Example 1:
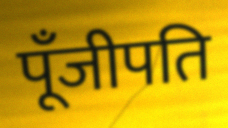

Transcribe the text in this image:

पूँजीपति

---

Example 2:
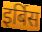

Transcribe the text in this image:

इर्बिस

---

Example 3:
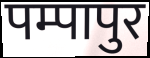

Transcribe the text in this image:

पम्पापुर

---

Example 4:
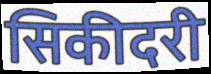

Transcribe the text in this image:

सिकीदरी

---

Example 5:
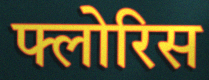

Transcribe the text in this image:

फ्लोरिस